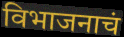
विभाजनाचं